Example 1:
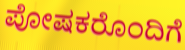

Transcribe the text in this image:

ಪೋಷಕರೊಂದಿಗೆ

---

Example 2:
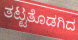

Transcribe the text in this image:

ತಟ್ಟತೊಡಗಿದ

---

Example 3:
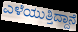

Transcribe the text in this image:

ಎಳೆಯುತ್ತಿದ್ದಾನೆ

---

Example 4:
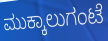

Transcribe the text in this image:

ಮುಕ್ಕಾಲುಗಂಟೆ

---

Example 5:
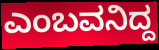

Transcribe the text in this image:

ಎಂಬವನಿದ್ದ